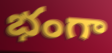
భంగా